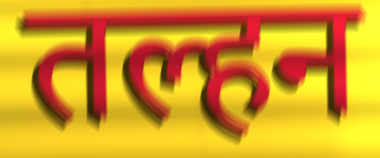
तल्हन